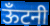
ऊँटनी